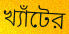
খ্যাঁটের